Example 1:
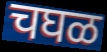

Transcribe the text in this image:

चघळ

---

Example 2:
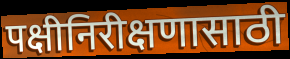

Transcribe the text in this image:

पक्षीनिरीक्षणासाठी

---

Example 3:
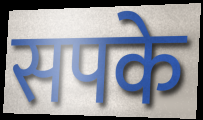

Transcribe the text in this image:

सपके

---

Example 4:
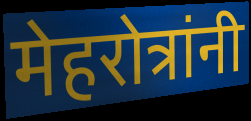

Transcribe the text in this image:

मेहरोत्रांनी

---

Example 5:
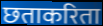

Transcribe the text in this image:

छताकरिता